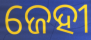
ଜେହୀ